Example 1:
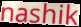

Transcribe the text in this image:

nashik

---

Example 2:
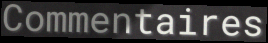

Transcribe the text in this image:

Commentaires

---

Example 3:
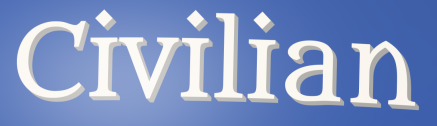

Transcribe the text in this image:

Civilian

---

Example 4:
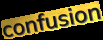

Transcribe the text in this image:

confusion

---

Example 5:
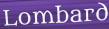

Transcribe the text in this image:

Lombard